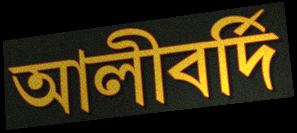
আলীবর্দি